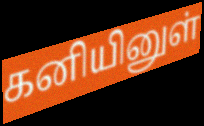
கனியினுள்